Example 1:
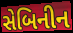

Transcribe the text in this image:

સેબિનીન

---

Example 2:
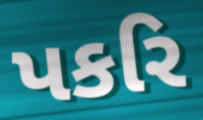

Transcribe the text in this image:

પકરિ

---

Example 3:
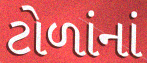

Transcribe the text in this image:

ટોળાંનાં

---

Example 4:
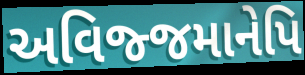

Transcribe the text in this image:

અવિજ્જમાનેપિ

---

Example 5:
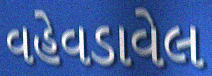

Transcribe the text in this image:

વહેવડાવેલ